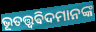
ଭୂତତ୍ତ୍ୱଵିଦମାନଙ୍କ